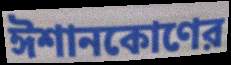
ঈশানকোণের